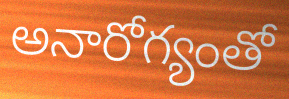
అనారోగ్యంతో